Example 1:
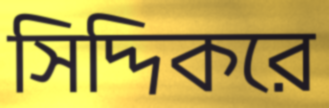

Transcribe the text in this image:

সিদ্দিকরে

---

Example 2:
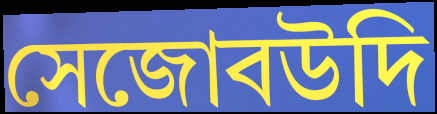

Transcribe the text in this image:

সেজোবউদি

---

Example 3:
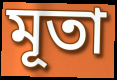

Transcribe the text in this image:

মূতা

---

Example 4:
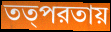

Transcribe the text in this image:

তত্পরতায়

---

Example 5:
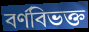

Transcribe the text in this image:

বর্ণবিভক্ত